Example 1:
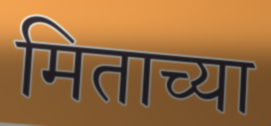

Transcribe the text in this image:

मिताच्या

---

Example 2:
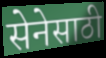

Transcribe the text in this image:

सेनेसाठी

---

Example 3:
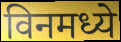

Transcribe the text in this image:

विनमध्ये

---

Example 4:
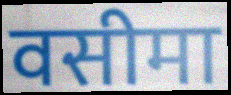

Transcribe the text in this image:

वसीमा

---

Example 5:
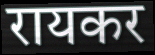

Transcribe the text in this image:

रायकर